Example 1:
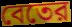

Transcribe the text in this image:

বেতের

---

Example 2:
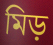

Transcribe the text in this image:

মিড়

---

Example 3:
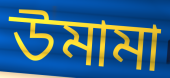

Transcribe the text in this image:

উমামা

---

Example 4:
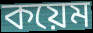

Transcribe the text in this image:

কয়েম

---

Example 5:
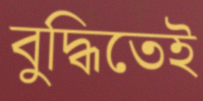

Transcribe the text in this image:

বুদ্ধিতেই